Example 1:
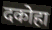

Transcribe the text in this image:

दकोहा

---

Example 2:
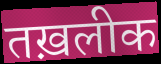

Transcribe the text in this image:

तख़लीक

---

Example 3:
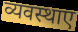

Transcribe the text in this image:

व्यवस्थाए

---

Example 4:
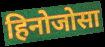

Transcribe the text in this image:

हिनोजोसा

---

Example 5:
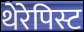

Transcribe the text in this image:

थेरेपिस्ट